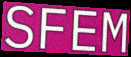
SFEM